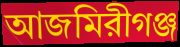
আজমিরীগঞ্জ